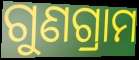
ଗୁଣଗ୍ରାମ